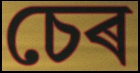
চেৰ